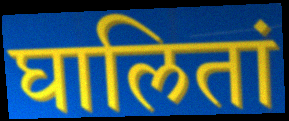
घालितां